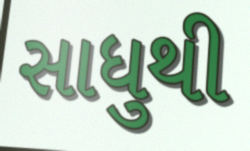
સાધુથી